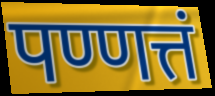
पण्णत्तं